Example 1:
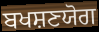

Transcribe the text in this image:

ਬਖਸ਼ਣਯੋਗ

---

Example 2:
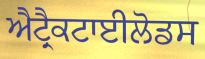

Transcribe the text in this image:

ਐਟ੍ਰੈਕਟਾਈਲੋਡਸ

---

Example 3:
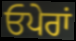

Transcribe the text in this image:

ਓਪੇਰਾਂ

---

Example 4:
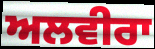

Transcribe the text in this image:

ਅਲਵੀਰਾ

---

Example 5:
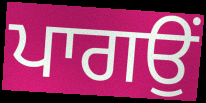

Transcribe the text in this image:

ਪਾਗਉਂ